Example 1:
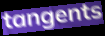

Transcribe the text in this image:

tangents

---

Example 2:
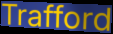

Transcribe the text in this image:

Trafford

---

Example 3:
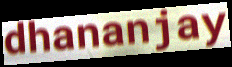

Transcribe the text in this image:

dhananjay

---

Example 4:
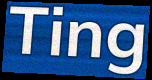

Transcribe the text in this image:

Ting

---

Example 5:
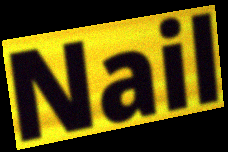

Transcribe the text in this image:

Nail